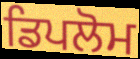
ਡਿਪਲੋਮ